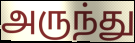
அருந்து